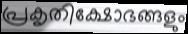
പ്രകൃതിക്ഷോഭങ്ങളും